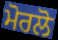
ਮੋਰਲੋ